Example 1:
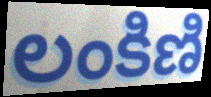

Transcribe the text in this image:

లంకిణి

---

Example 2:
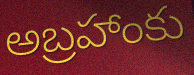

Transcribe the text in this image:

అబ్రహాంకు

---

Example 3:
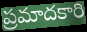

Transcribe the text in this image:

ప్రమాదకారి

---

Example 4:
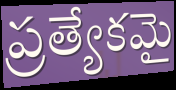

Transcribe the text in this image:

ప్రత్యేకమై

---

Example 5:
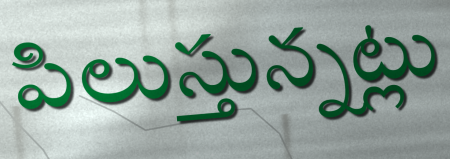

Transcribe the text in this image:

పిలుస్తున్నట్లు